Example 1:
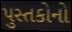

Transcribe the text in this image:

પુસ્તકોનો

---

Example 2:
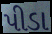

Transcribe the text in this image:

પીડા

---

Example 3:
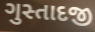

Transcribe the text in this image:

ગુસ્તાદજી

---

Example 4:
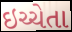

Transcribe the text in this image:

ઇચ્ચેતા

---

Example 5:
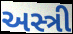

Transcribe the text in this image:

અસ્ત્રી